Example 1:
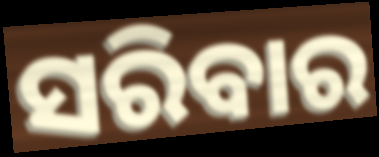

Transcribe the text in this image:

ସରିବାର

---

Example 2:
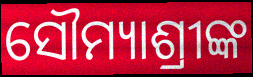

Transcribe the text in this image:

ସୌମ୍ୟାଶ୍ରୀଙ୍କ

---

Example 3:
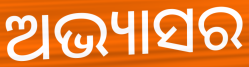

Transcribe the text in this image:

ଅଭ୍ୟାସର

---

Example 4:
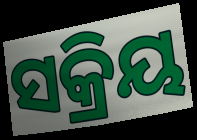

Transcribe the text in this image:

ସକ୍ରିୟ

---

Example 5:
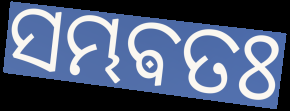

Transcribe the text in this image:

ସମ୍ଭଵତଃ